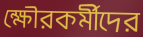
ক্ষৌরকর্মীদের